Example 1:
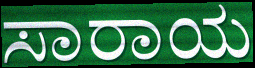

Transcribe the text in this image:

ಸಾರಾಯ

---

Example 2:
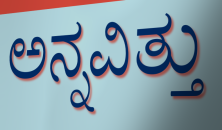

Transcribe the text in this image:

ಅನ್ನವಿತ್ತು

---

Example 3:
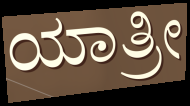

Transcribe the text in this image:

ಯಾತ್ರೀ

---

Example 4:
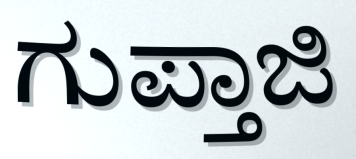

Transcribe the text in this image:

ಗುಪ್ತಾಜಿ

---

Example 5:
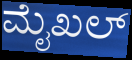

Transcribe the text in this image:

ಮೈಖಲ್